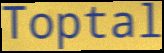
Toptal